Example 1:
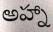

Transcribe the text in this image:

అహ్నా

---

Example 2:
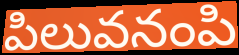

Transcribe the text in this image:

పిలువనంపి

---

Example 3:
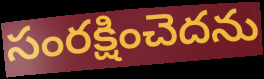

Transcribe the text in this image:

సంరక్షించెదను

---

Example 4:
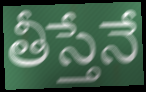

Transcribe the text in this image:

తీస్తేనే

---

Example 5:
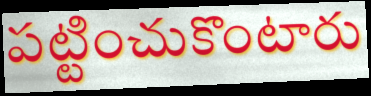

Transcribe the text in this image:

పట్టించుకొంటారు